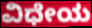
ವಿಧೇಯ